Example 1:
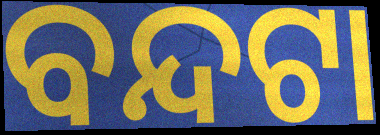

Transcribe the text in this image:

ବନ୍ଦଟା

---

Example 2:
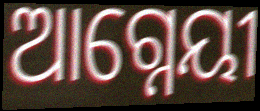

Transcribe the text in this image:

ଆଗ୍ନେୟୀ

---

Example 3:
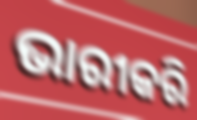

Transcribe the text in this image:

ଭାରୀକରି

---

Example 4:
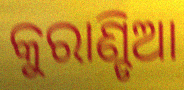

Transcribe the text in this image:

କୁରାଣ୍ଡିଆ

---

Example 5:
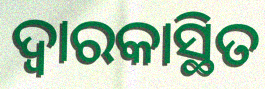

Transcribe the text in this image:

ଦ୍ୱାରକାସ୍ଥିତ